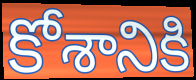
కోశానికి